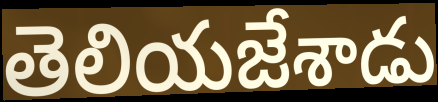
తెలియజేశాడు